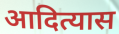
आदित्यास